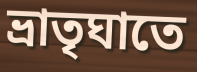
ভ্রাতৃঘাতে